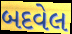
બદવેલ